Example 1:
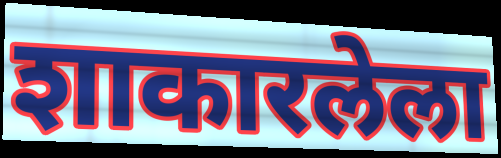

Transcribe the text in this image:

शाकारलेला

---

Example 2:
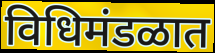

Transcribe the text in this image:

विधिमंडळात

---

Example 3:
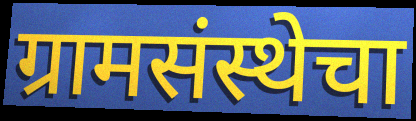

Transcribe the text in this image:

ग्रामसंस्थेचा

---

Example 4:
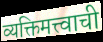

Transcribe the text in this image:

व्यक्तिमत्त्वाची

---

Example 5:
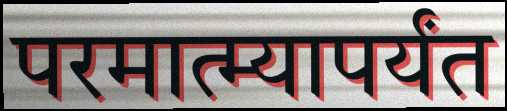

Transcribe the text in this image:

परमात्म्यापर्यंत